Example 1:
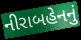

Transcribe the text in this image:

નીરાબહેનનું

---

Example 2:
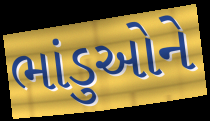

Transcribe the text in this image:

ભાંડુઓને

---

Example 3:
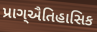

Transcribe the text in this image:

પ્રાગ્ઐતિહાસિક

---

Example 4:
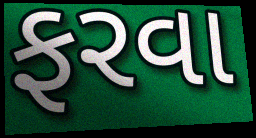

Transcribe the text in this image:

ફરવા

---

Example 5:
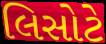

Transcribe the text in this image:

લિસોટે